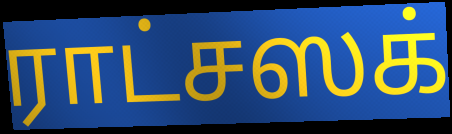
ராட்சஸக்